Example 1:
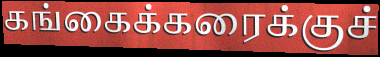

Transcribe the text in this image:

கங்கைக்கரைக்குச்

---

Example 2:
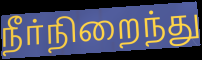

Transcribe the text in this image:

நீர்நிறைந்து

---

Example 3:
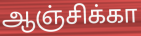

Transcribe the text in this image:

ஆஞ்சிக்கா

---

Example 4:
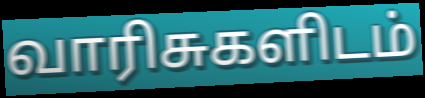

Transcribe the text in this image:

வாரிசுகளிடம்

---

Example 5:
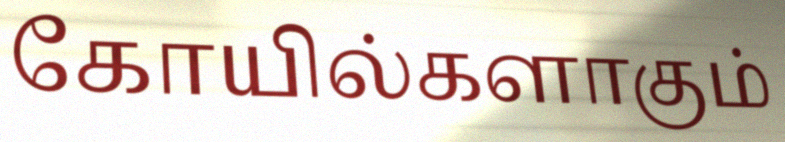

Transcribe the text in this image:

கோயில்களாகும்